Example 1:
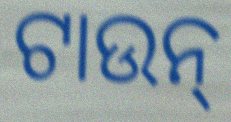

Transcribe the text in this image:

ଟାଉନ୍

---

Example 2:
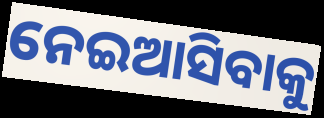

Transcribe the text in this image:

ନେଇଆସିବାକୁ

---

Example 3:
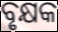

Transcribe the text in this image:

ବୃକ୍ଷକ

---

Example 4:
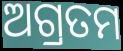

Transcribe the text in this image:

ଅଗ୍ରତମ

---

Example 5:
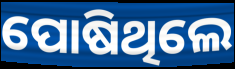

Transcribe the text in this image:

ପୋଷିଥିଲେ